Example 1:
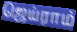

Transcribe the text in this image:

ஜெய்ராம்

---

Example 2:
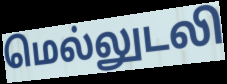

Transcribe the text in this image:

மெல்லுடலி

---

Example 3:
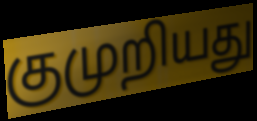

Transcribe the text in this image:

குமுறியது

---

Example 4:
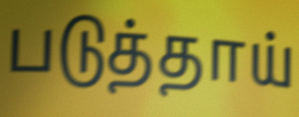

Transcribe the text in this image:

படுத்தாய்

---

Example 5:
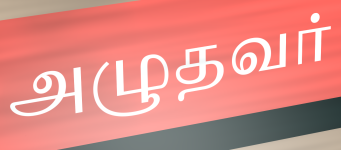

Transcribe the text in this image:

அழுதவர்